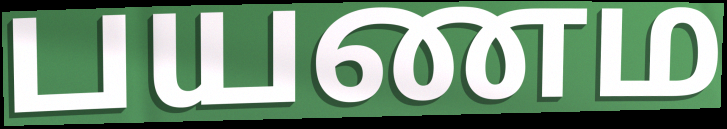
பயணம